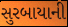
સુરબાયાની